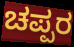
ಚಪ್ಪರ